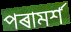
পৰামৰ্শ